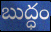
బుద్ధం